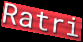
Ratri